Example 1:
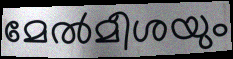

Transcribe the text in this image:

മേൽമീശയും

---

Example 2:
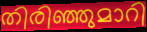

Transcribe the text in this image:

തിരിഞ്ഞുമാറി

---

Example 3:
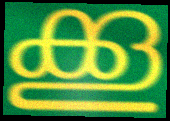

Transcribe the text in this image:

ക്കൂ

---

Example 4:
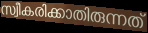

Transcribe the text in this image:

സ്വീകരിക്കാതിരുന്നത്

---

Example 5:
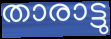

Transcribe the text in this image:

താരാട്ടു